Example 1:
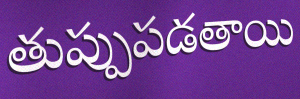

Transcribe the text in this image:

తుప్పుపడతాయి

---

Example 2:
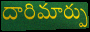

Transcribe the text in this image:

దారిమార్పు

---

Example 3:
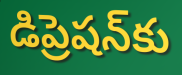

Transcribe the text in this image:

డిప్రెషన్‌కు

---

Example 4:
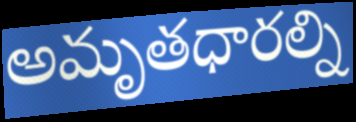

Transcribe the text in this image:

అమృతధారల్ని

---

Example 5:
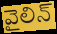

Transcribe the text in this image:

వైలిన్